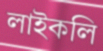
লাইকলি